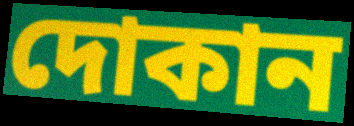
দোকান